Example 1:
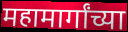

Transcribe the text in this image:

महामार्गांच्या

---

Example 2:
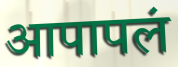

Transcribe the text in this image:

आपापलं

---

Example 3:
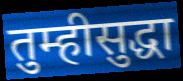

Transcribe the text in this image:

तुम्हीसुद्धा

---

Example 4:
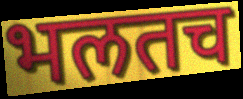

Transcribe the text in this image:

भलतच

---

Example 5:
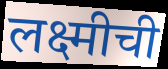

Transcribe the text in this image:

लक्ष्मीची